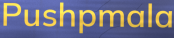
Pushpmala